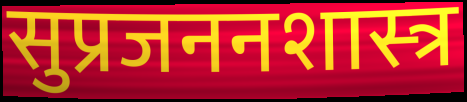
सुप्रजननशास्त्र